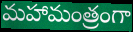
మహామంత్రంగా